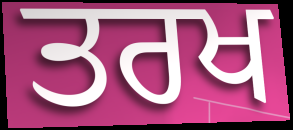
ਤਰਖ